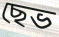
ছেভ